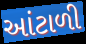
આંટાળી